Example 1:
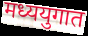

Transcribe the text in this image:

मध्ययुगात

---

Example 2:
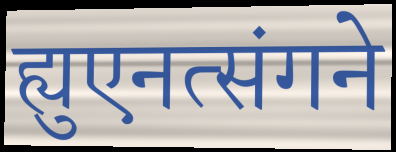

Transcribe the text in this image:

ह्युएनत्संगने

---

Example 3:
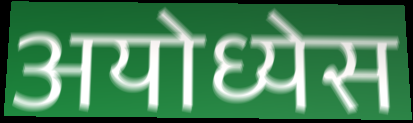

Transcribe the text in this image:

अयोध्येस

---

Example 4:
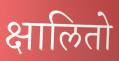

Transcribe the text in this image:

क्षालितो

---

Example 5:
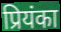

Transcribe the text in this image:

प्रियंका